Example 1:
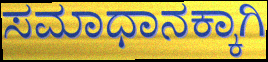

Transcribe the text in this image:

ಸಮಾಧಾನಕ್ಕಾಗಿ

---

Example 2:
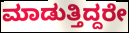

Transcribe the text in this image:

ಮಾಡುತ್ತಿದ್ದರೇ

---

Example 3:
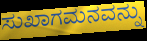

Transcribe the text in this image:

ಸುಖಾಗಮನವನ್ನು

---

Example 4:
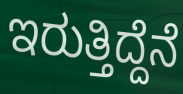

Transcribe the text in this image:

ಇರುತ್ತಿದ್ದೆನೆ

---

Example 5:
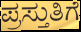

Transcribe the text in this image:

ಪ್ರಸ್ತುತಿಗೆ